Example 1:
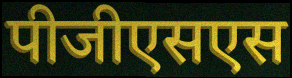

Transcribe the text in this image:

पीजीएसएस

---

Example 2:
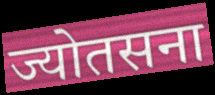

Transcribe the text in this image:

ज्योतसना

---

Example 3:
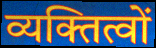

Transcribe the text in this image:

व्यक्तित्वों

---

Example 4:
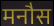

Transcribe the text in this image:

मनौस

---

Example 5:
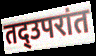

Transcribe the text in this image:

तद्उपरांत